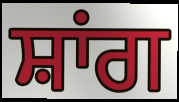
ਸ਼ਾਂਗ